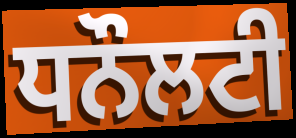
ਧਨੌਲਟੀ